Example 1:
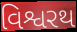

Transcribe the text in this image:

વિશ્વરથ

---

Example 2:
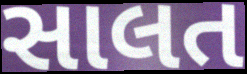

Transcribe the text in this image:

સાલત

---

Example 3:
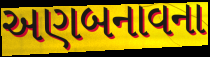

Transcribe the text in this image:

અણબનાવના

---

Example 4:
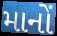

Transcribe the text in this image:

માનોં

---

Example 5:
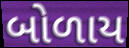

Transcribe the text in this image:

બોળાય